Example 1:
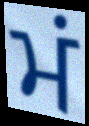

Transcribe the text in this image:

ਮਂ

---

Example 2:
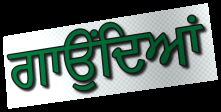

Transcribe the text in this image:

ਗਾਉਂਦਿਆਂ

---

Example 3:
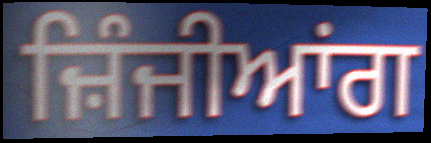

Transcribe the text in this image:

ਜ਼ਿੰਜੀਆਂਗ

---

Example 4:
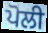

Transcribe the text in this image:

ਪੋਲੀ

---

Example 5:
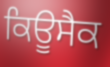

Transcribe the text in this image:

ਕਿਊਸੈਕ